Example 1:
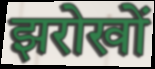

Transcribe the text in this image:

झरोखों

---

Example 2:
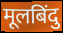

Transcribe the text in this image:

मूलबिंदु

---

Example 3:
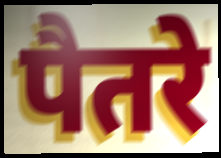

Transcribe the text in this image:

पैतरे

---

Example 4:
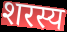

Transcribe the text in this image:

शरस्य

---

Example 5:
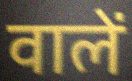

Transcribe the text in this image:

वालें